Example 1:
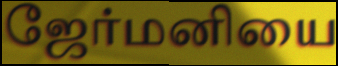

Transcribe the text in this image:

ஜேர்மனியை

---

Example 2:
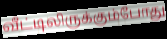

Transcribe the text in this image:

வீட்டிலிருக்கும்போது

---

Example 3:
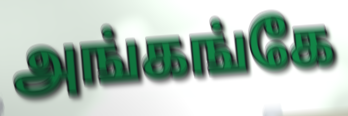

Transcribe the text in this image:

அங்கங்கே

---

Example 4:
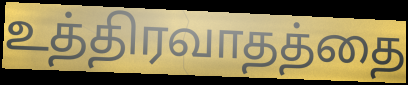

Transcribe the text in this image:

உத்திரவாதத்தை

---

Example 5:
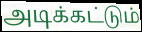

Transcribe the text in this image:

அடிக்கட்டும்